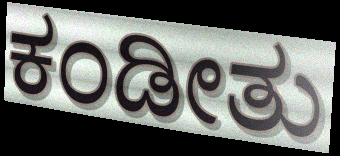
ಕಂಡೀತು